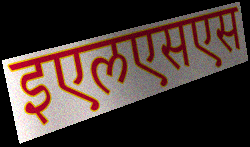
इएलएसएस